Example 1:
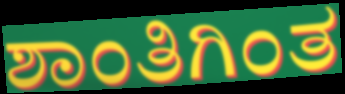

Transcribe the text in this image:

ಶಾಂತಿಗಿಂತ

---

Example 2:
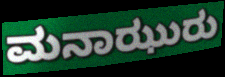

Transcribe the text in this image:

ಮನಾಝುರು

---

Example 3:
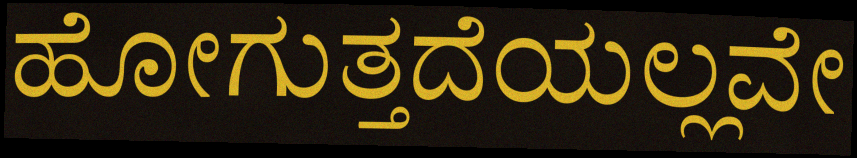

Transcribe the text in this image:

ಹೋಗುತ್ತದೆಯಲ್ಲವೇ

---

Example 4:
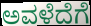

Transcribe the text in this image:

ಅವಳೆದೆಗೆ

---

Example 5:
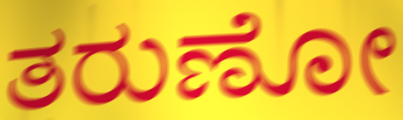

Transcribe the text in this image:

ತರುಣೋ